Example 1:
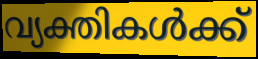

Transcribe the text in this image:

വ്യക്തികൾക്ക്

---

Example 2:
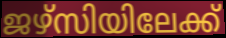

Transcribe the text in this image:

ജഴ്സിയിലേക്ക്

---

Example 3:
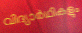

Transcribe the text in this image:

വിദ്യാർഥികളും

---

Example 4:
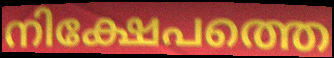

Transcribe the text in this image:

നിക്ഷേപത്തെ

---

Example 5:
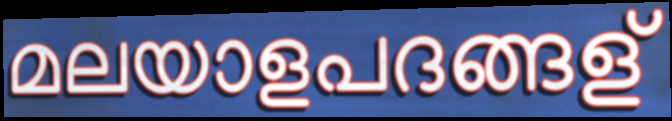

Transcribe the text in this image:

മലയാളപദങ്ങള്